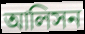
আলিসন